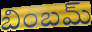
బింబమ్